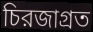
চিরজাগ্রত